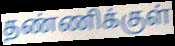
தண்ணிக்குள்